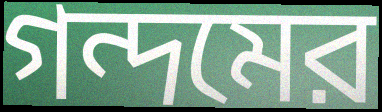
গন্দমের